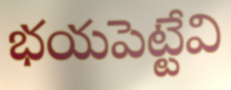
భయపెట్టేవి